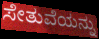
ಸೇತುವೆಯನ್ನು